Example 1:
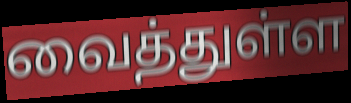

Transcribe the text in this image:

வைத்துள்ள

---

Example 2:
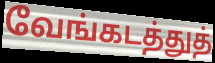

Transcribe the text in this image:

வேங்கடத்துத்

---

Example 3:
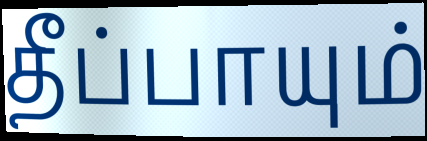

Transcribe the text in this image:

தீப்பாயும்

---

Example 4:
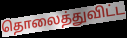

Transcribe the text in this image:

தொலைத்துவிட்ட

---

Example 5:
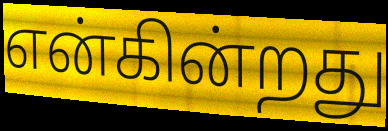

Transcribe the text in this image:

என்கின்றது